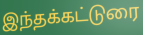
இந்தக்கட்டுரை